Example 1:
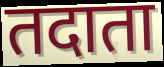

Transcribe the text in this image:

तदाता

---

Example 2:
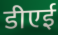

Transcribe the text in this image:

डीएई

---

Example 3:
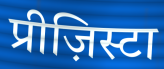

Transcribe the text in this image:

प्रीज़िस्टा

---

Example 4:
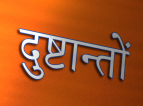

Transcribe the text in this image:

दुष्टान्तों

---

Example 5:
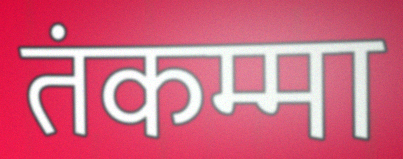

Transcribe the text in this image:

तंकम्मा